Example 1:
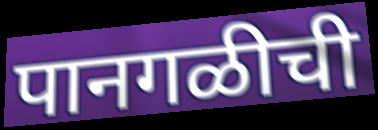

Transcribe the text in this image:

पानगळीची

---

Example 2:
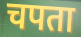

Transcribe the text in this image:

चपता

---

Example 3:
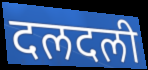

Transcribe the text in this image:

दलदली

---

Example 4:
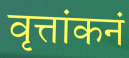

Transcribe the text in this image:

वृत्तांकनं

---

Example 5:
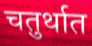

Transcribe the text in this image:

चतुर्थात